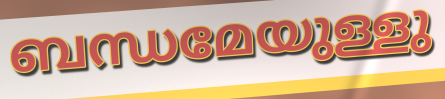
ബന്ധമേയുള്ളു